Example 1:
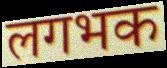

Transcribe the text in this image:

लगभक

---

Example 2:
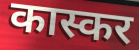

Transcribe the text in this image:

कास्कर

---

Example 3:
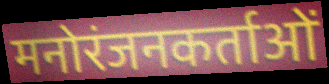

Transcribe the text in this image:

मनोरंजनकर्ताओं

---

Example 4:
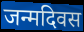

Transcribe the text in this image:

जन्मदिवस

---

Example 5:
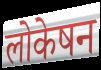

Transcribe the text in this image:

लोकेषन